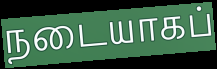
நடையாகப்